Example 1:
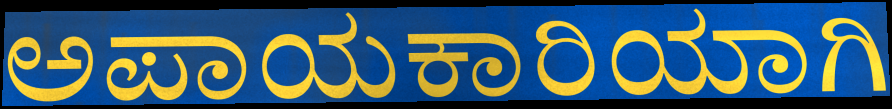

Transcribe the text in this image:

ಅಪಾಯಕಾರಿಯಾಗಿ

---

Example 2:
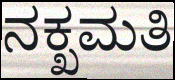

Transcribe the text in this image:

ನಕ್ಖಮತಿ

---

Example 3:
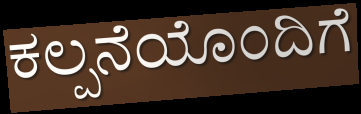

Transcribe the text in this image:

ಕಲ್ಪನೆಯೊಂದಿಗೆ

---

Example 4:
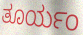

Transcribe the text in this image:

ತೂರ್ಯಂ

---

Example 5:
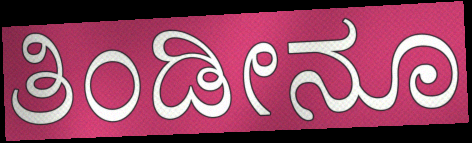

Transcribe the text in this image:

ತಿಂಡೀನೂ